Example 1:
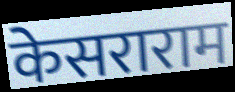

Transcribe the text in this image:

केसराराम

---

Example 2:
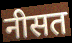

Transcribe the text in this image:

नीसत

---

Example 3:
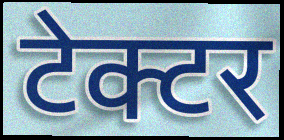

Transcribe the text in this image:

टेक्टर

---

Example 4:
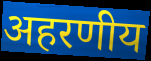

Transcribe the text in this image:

अहरणीय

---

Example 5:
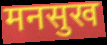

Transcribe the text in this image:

मनसुख